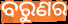
ବରୁଣର